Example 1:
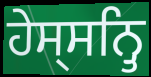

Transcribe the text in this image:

ਹੇਸ੍ਸਨ੍ਤਿ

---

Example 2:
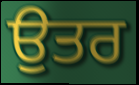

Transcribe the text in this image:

ਉੁਤਰ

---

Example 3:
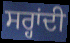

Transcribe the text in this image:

ਸਰ੍ਹਾਂਦੀ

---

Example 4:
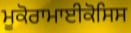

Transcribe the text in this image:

ਮੂਕੋਰਾਮਾਈਕੋਸਿਸ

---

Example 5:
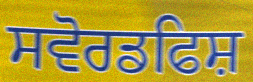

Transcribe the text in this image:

ਸਵੋਰਡਫਿਸ਼